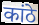
कांठे